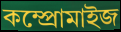
কম্প্রোমাইজ